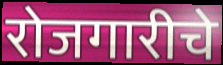
रोजगारीचे